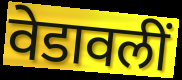
वेडावलीं